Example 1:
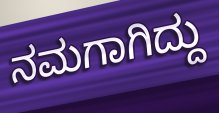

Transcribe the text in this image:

ನಮಗಾಗಿದ್ದು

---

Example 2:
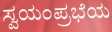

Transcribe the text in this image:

ಸ್ವಯಂಪ್ರಭೆಯ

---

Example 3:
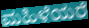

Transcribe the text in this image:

ಮಹಿಳೆಯರೆ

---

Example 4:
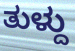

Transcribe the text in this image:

ತುಳ್ದು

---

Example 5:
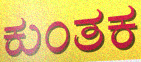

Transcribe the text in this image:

ಕುಂತಕ